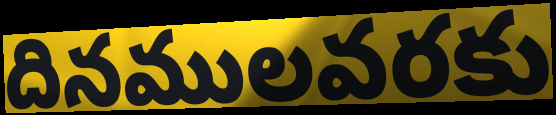
దినములవరకు